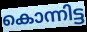
കൊന്നിട്ട